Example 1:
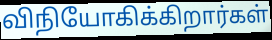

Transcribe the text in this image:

விநியோகிக்கிறார்கள்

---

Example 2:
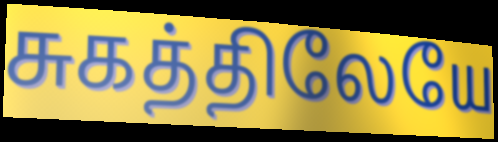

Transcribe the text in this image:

சுகத்திலேயே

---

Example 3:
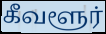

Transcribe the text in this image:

கீவளூர்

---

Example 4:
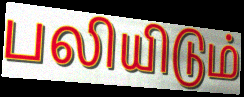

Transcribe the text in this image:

பலியிடும்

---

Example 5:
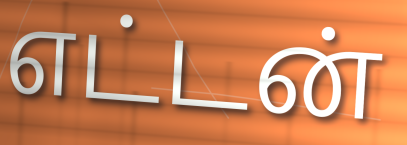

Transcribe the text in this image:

எட்டன்